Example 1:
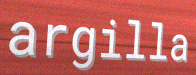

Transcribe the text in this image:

argilla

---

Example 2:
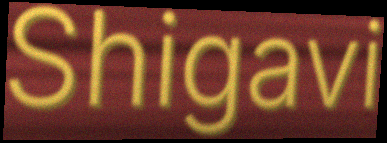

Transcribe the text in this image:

Shigavi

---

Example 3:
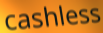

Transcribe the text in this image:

cashless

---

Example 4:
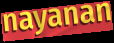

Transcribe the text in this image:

nayanan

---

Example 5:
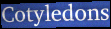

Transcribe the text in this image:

Cotyledons